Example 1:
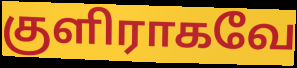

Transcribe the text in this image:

குளிராகவே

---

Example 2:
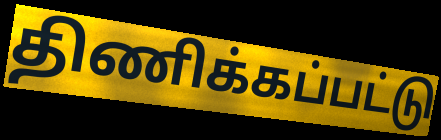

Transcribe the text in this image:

திணிக்கப்பட்டு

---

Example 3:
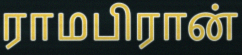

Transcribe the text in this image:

ராமபிரான்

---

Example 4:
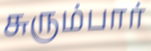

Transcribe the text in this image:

சுரும்பார்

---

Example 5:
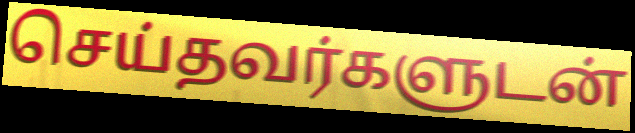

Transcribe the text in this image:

செய்தவர்களுடன்